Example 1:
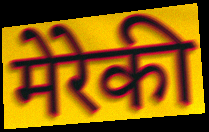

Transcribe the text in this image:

मेरेकी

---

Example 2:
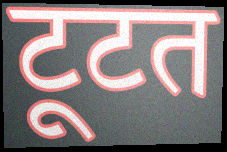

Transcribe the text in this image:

टूटत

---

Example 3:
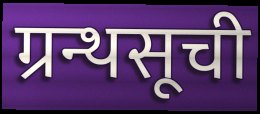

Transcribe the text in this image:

ग्रन्थसूची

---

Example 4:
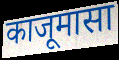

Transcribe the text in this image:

काजूमासा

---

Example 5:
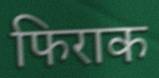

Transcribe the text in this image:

फिराक